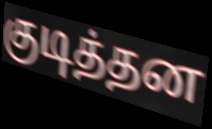
குடித்தன